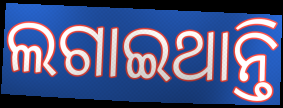
ଲଗାଇଥାନ୍ତି